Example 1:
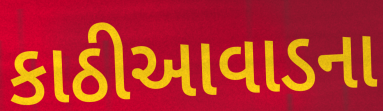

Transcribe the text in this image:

કાઠીઆવાડના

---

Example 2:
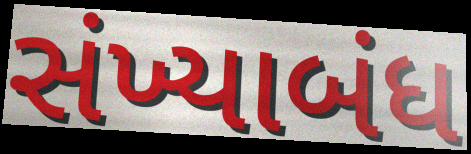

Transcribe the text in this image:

સંખ્યાબંધ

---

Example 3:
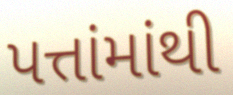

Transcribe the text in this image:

પત્તાંમાંથી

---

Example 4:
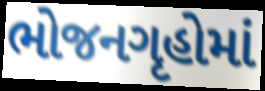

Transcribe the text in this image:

ભોજનગૃહોમાં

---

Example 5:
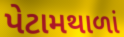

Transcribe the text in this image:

પેટામથાળાં